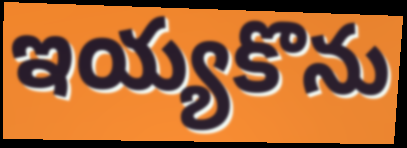
ఇయ్యకొను